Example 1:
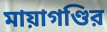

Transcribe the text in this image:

মায়াগণ্ডির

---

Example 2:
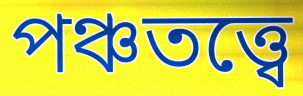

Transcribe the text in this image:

পঞ্চতত্ত্বে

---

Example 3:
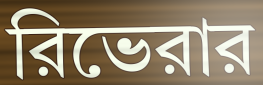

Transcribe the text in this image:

রিভেরার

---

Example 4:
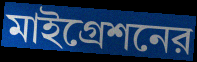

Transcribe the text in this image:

মাইগ্রেশনের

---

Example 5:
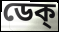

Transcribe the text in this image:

ডেক্